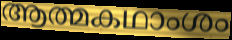
ആത്മകഥാംശം